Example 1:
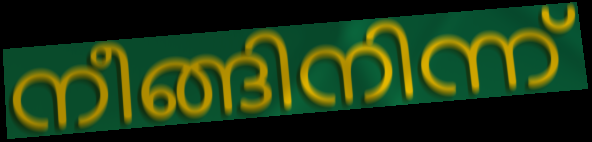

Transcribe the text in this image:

നീങ്ങിനിന്ന്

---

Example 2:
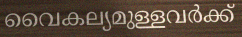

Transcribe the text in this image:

വൈകല്യമുള്ളവർക്ക്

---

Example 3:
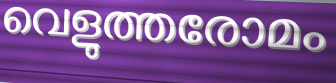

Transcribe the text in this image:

വെളുത്തരോമം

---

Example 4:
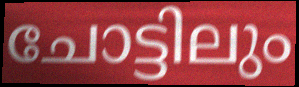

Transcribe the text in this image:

ചോട്ടിലും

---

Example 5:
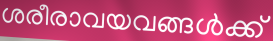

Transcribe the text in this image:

ശരീരാവയവങ്ങൾക്ക്